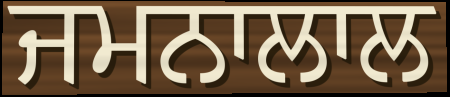
ਜਮਨਾਲਾਲ